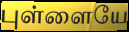
புள்ளையே